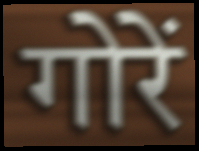
गोरें